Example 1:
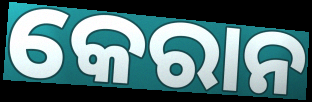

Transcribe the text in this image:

କେରାନ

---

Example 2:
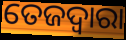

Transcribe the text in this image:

ତେଜଦ୍ୱାରା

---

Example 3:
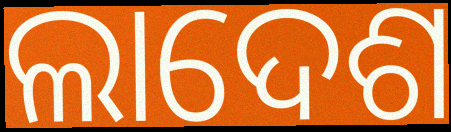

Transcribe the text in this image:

ଲାଦେଶ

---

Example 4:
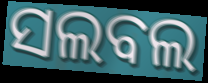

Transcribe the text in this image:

ସଲବଲ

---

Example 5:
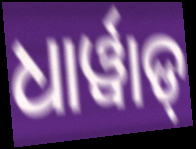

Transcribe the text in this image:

ଧାର୍ୱାଡ୍